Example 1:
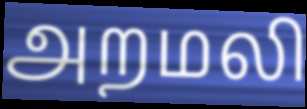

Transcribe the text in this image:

அறமலி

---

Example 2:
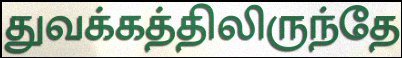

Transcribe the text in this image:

துவக்கத்திலிருந்தே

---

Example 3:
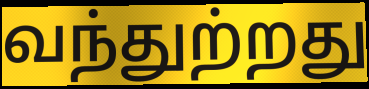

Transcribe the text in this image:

வந்துற்றது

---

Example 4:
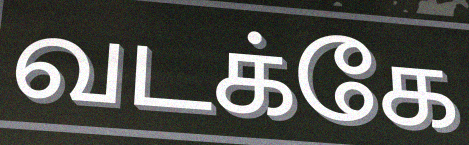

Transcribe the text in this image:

வடக்கே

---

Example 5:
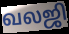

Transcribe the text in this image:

வலஜி